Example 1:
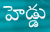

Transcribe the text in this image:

హెడ్డు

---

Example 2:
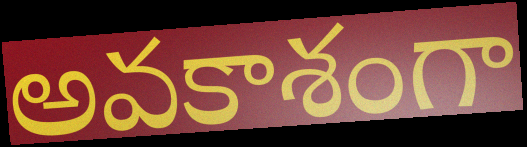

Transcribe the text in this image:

అవకాశంగా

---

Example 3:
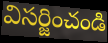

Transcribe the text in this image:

విసర్జించండి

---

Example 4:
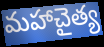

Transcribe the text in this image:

మహాచైత్య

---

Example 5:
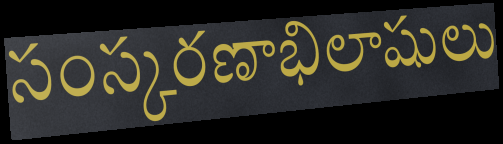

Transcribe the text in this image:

సంస్కరణాభిలాషులు